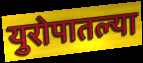
युरोपातल्या